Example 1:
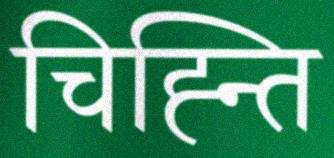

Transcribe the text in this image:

चिह्न्ति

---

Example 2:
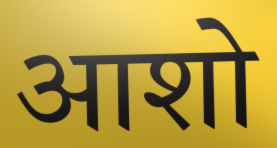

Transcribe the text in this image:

आशो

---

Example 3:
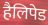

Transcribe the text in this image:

हैलिपेड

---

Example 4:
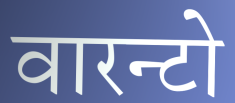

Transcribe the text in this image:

वारन्टो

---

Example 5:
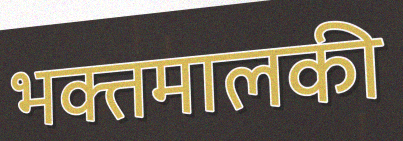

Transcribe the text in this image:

भक्तमालकी